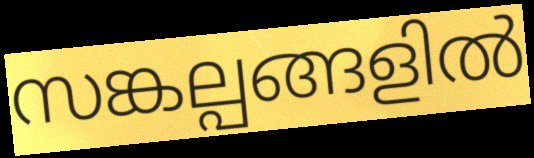
സങ്കല്പങ്ങളിൽ